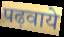
पढ़वाये